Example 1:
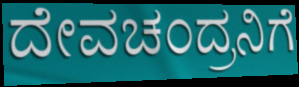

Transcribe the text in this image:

ದೇವಚಂದ್ರನಿಗೆ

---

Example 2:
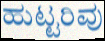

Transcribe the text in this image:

ಹುಟ್ಟರಿವು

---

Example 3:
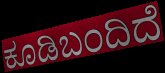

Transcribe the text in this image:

ಕೂಡಿಬಂದಿದೆ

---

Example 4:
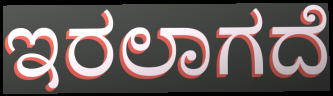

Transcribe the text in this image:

ಇರಲಾಗದೆ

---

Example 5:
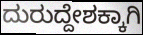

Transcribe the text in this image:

ದುರುದ್ದೇಶಕ್ಕಾಗಿ